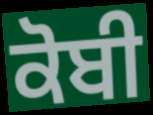
ਕੋਬੀ